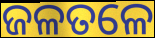
ଜଳତଳେ